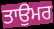
ਤਾਉਮਰ